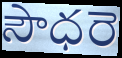
సౌధరె